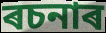
ৰচনাৰ